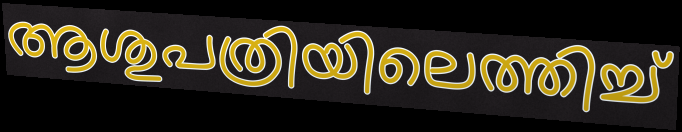
ആശുപത്രിയിലെത്തിച്ച്